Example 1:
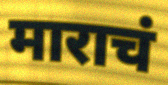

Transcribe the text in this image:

माराचं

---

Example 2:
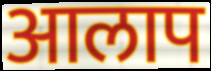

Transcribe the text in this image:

आलाप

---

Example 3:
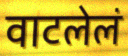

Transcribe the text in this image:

वाटलेलं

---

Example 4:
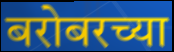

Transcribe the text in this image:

बरोबरच्या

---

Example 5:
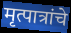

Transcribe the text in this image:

मृत्पात्रांचे